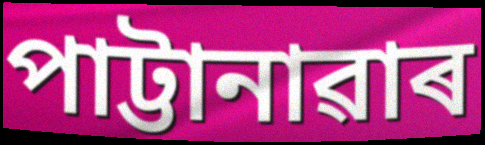
পাট্টানাৱাৰ